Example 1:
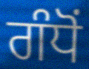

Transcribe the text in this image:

ਗੰਧੋਂ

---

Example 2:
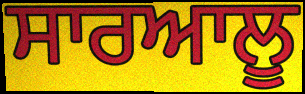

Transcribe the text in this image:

ਸਾਰਆਲੂ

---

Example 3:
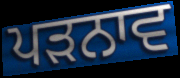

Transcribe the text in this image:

ਪੜਨਾਵ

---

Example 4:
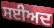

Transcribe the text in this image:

ਸਈਅਦ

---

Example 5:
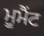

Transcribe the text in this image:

ਮੂਮੈਂਟ